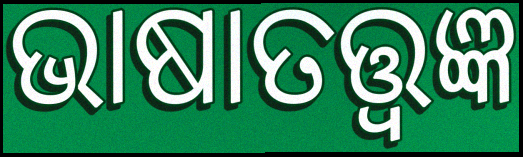
ଭାଷାତତ୍ତ୍ୱଜ୍ଞ